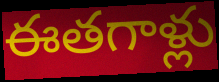
ఈతగాళ్లు